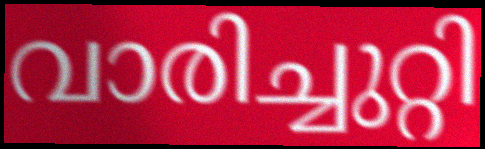
വാരിച്ചുറ്റി